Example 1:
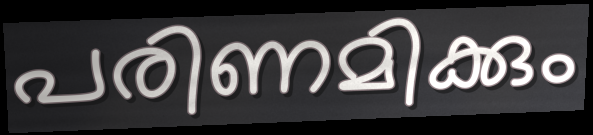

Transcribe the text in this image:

പരിണമിക്കും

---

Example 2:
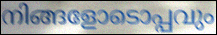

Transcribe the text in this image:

നിങ്ങളോടൊപ്പവും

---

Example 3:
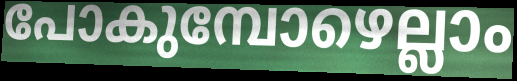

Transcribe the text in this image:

പോകുമ്പോഴെല്ലാം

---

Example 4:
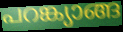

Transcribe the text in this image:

പറങ്ക്യാങ്ങ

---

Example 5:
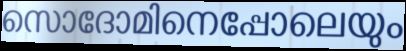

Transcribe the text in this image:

സൊദോമിനെപ്പോലെയും